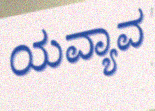
ಯವ್ಯಾವ